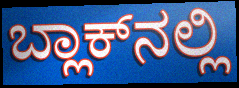
ಬ್ಲಾಕ್‌ನಲ್ಲಿ